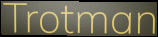
Trotman